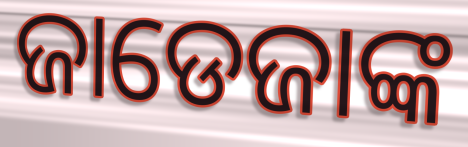
ଜାଡେଜାଙ୍କ